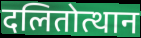
दलितोत्थान